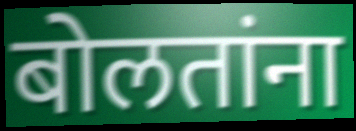
बोलतांना